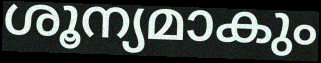
ശൂന്യമാകും